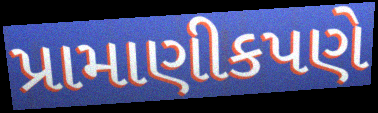
પ્રામાણીકપણે